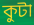
কুটা